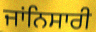
ਜਾਂਨਿਸਾਰੀ